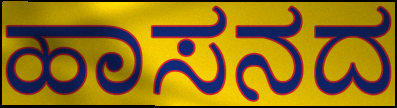
ಹಾಸನದ